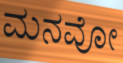
ಮನವೋ